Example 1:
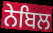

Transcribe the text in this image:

ਨੇਬਿਲ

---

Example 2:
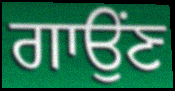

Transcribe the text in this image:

ਗਾਉਂਣ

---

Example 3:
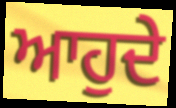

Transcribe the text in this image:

ਆਹੁਦੇ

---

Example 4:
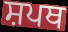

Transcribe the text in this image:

ਸ਼ਪਥ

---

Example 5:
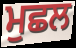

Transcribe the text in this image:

ਮੁਛਲ